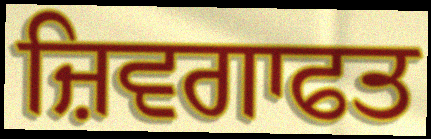
ਜ਼ਿਵਗਾਫਤ